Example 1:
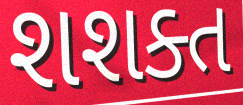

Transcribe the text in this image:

શશક્ત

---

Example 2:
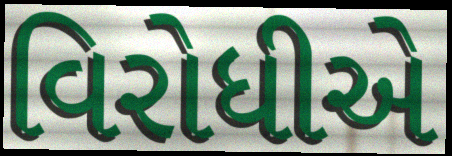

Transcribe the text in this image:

વિરોધીએ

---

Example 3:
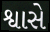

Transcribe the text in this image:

શ્વાસે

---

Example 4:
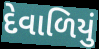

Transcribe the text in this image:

દેવાળિયું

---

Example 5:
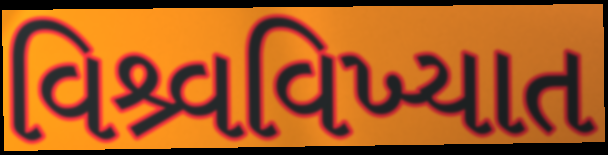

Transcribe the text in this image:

વિશ્ર્વવિખ્યાત